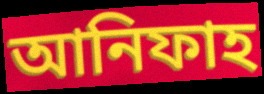
আনিফাহ